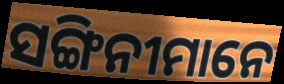
ସଙ୍ଗିନୀମାନେ